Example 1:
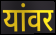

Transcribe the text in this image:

यांवर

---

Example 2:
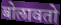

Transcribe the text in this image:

बोलावतो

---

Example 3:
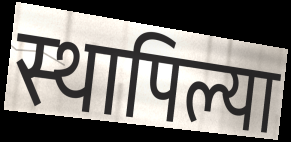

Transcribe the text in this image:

स्थापिल्या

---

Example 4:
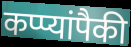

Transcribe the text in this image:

कप्प्यांपैकी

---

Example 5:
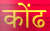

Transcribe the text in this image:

कोंढ